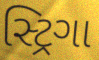
સ્ટ્રિગા